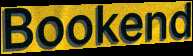
Bookend